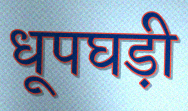
धूपघड़ी